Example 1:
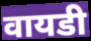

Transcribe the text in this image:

वायडी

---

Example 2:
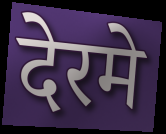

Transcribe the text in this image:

देरमे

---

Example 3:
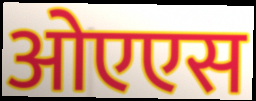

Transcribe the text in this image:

ओएएस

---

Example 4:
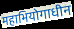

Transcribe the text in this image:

महाभियोगाधीन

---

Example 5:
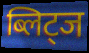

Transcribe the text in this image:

ब्लिट्ज